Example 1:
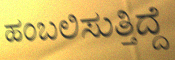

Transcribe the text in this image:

ಹಂಬಲಿಸುತ್ತಿದ್ದೆ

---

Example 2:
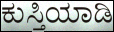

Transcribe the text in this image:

ಕುಸ್ತಿಯಾಡಿ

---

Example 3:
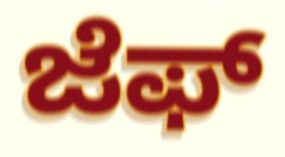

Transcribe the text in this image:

ಜೆಫ್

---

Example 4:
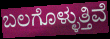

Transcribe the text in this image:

ಬಲಗೊಳ್ಳುತ್ತಿವೆ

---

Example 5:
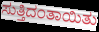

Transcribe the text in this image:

ಸುತ್ತಿದಂತಾಯಿತು